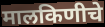
मालकिणीचे